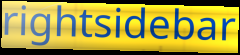
rightsidebar